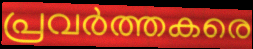
പ്രവർത്തകരെ